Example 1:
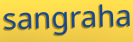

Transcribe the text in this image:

sangraha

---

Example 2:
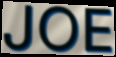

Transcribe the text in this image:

JOE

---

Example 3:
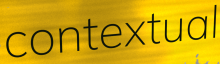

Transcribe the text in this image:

contextual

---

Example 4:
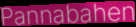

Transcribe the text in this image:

Pannabahen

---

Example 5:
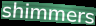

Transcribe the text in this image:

shimmers